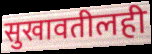
सुखावतीलही